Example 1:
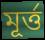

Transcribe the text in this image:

মূর্ত্ত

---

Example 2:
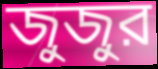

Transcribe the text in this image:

জুজুর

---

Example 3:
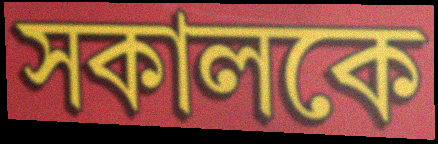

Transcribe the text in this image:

সকালকে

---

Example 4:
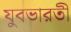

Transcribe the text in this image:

যুবভারতী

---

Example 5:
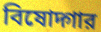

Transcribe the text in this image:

বিষোদ্গার